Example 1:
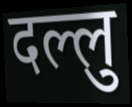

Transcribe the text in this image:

दल्लु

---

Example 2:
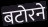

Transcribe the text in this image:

बटोरने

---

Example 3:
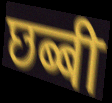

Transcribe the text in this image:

छब्बी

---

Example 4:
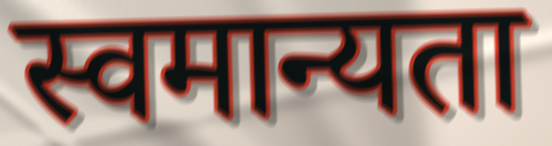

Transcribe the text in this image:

स्वमान्यता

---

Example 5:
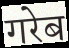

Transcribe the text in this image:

गरेब